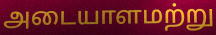
அடையாளமற்று